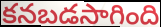
కనబడసాగింది